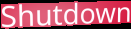
Shutdown